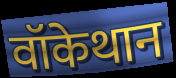
वॉकेथान